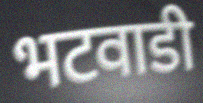
भटवाडी